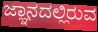
ಜ್ಞಾನದಲ್ಲಿರುವ